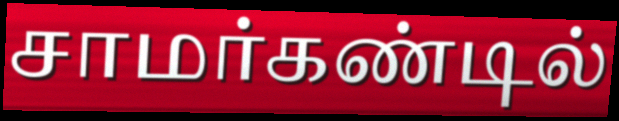
சாமர்கண்டில்